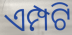
ଏମ୍ପଟି